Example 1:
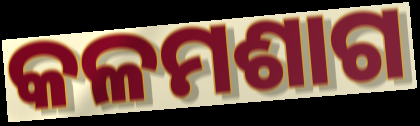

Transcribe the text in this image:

କଳମଶାଗ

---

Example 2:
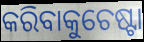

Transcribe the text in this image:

କରିବାକୁଚେଷ୍ଟା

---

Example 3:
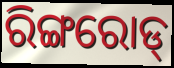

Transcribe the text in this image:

ରିଙ୍ଗରୋଡ୍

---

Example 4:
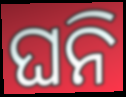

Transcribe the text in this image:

ଘନି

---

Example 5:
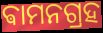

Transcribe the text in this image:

ଵାମନଗ୍ରହ